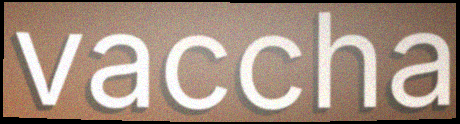
vaccha